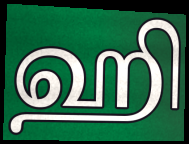
ஹி